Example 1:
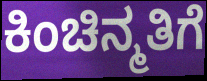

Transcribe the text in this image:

ಕಿಂಚಿನ್ಮತಿಗೆ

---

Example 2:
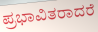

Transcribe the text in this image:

ಪ್ರಭಾವಿತರಾದರೆ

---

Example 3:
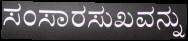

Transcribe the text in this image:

ಸಂಸಾರಸುಖವನ್ನು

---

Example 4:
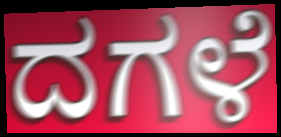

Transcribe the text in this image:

ದಗಳೆ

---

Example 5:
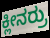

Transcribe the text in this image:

ಕ್ಲೀನರ್ರು